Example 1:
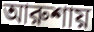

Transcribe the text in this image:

আরুশায়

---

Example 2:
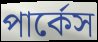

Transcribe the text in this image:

পার্কেস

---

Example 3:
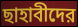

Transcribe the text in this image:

ছাহাবীদের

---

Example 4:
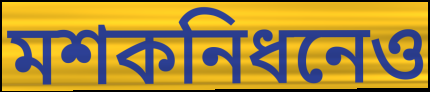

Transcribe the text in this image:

মশকনিধনেও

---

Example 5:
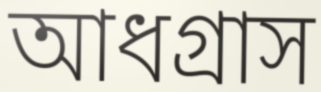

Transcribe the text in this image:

আধগ্রাস